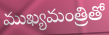
ముఖ్యమంత్రితో